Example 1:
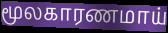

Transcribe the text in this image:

மூலகாரணமாய்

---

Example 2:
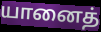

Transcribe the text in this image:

யானைத்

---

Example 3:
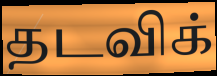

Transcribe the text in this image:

தடவிக்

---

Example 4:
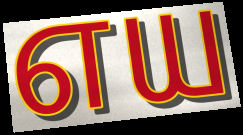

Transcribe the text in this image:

எய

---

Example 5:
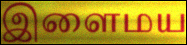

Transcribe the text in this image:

இளைமய